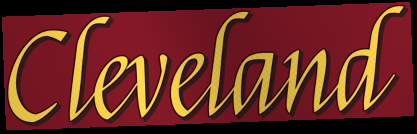
Cleveland